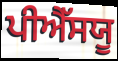
ਪੀਐੱਸਯੂ